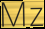
Mz